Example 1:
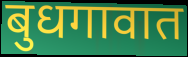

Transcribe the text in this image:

बुधगावात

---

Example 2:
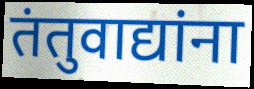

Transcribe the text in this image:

तंतुवाद्यांना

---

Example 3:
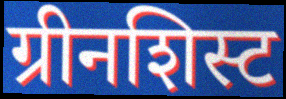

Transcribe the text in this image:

ग्रीनशिस्ट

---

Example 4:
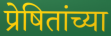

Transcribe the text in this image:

प्रेषितांच्या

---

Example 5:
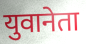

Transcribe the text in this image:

युवानेता